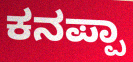
ಕನಪ್ಪಾ